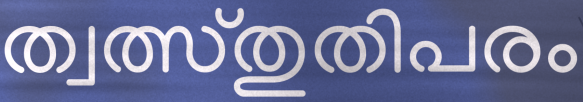
ത്വത്സ്തുതിപരം